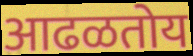
आढळतोय